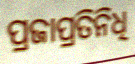
ପ୍ରଜାପ୍ରତିନିଧି